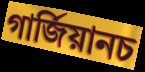
গাৰ্জিয়ানচ